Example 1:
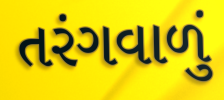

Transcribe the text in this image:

તરંગવાળું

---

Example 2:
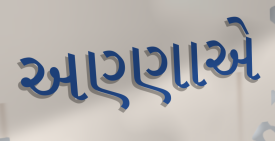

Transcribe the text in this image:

અણ્ણાએ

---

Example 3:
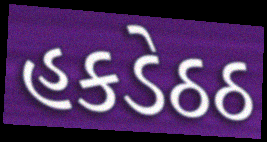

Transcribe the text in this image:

હકડેઠઠ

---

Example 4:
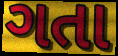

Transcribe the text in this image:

ગતા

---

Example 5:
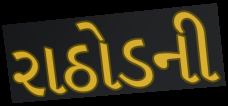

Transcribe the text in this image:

રાઠોડની